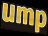
ump